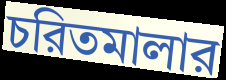
চরিতমালার